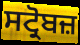
ਸਟ੍ਰੋਬਜ਼